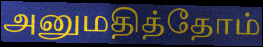
அனுமதித்தோம்